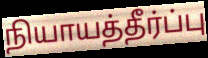
நியாயத்தீர்ப்பு